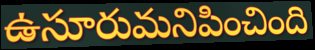
ఉసూరుమనిపించింది